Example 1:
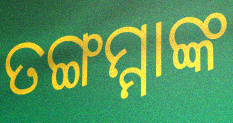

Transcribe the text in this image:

ତଙ୍ଗମ୍ମାଙ୍କ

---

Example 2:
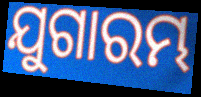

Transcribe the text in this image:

ଯୁଗାରମ୍ଭ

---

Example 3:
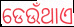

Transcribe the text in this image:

ଡେଉଁଥାଏ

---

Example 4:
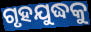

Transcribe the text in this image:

ଗୃହଯୁଦ୍ଧକୁ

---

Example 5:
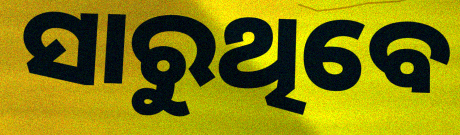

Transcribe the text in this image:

ସାରୁଥିବେ